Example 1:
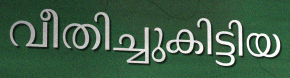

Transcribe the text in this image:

വീതിച്ചുകിട്ടിയ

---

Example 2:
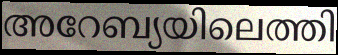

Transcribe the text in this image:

അറേബ്യയിലെത്തി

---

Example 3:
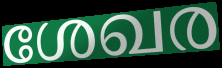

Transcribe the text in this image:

ശേഖര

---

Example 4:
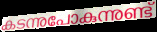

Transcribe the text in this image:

കടന്നുപോകുന്നുണ്ട്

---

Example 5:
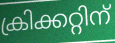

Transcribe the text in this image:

ക്രിക്കറ്റിന്